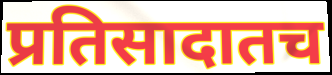
प्रतिसादातच